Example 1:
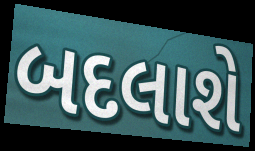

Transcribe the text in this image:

બદલાશે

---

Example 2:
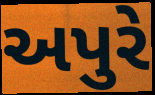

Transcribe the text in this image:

અપુરે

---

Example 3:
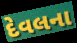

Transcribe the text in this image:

દેવલના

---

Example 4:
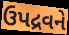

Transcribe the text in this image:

ઉપદ્રવને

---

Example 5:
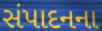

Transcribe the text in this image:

સંપાદનના